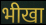
भीखा